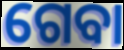
ଗେବା